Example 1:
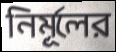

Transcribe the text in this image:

নির্মূলের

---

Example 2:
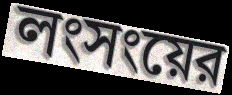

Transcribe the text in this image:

লংসংয়ের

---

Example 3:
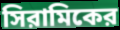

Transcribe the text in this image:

সিরামিকের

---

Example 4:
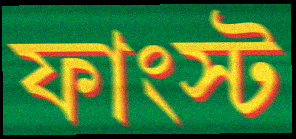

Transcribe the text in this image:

ফাংস্ট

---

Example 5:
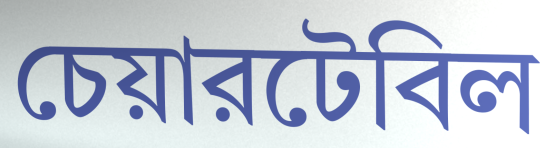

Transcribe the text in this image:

চেয়ারটেবিল